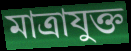
মাত্রাযুক্ত